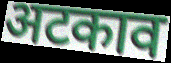
अटकाव